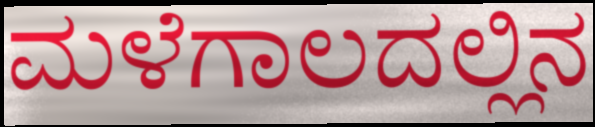
ಮಳೆಗಾಲದಲ್ಲಿನ